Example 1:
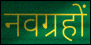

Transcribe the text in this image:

नवग्रहों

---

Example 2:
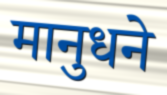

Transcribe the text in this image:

मानुधने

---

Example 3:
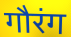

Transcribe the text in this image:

गौरंग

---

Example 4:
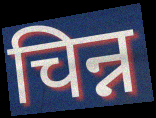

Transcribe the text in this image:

चिन्न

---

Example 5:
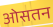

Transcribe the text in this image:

ओसतन